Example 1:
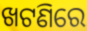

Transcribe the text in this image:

ଖଟଣିରେ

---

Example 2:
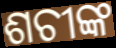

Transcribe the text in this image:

ଶଚୀଙ୍କ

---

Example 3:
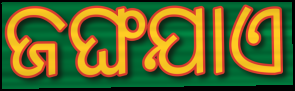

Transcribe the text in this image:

ଜଙ୍ଘଯାଏ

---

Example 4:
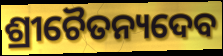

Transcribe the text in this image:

ଶ୍ରୀଚୈତନ୍ୟଦେବ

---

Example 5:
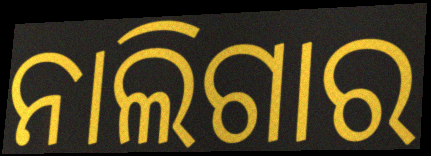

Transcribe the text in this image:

ନାଲିଗାର